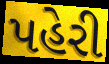
પહેરી